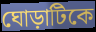
ঘোড়াটিকে